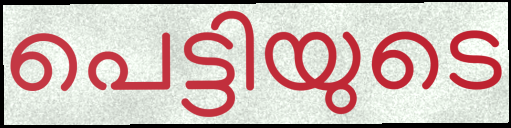
പെട്ടിയുടെ